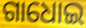
ଗାଧୋଇ